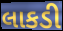
લાકડી